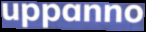
uppanno